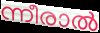
ന്നീരാൽ